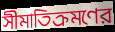
সীমাতিক্রমণের